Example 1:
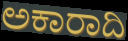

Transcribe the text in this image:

ಅಕಾರಾದಿ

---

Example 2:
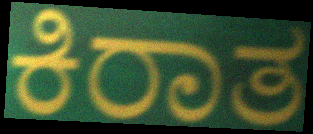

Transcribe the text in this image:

ಕಿರಾತ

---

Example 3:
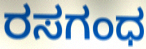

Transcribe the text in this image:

ರಸಗಂಧ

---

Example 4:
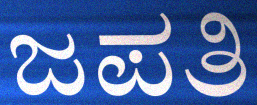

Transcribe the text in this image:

ಜಪತಿ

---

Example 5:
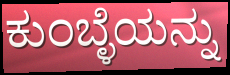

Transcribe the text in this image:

ಕುಂಬ್ಳೆಯನ್ನು